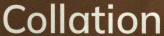
Collation